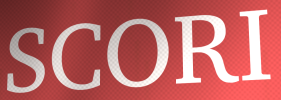
SCORI